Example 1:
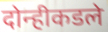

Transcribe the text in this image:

दोन्हीकडले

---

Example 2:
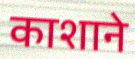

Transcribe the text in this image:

काशाने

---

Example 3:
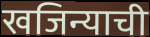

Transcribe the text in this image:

खजिन्याची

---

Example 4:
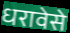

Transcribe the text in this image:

धरावेसे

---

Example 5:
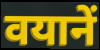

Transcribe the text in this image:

वयानें